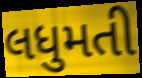
લધુમતી